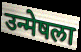
उन्मेषला